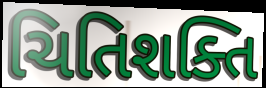
ચિતિશક્તિ